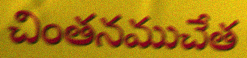
చింతనముచేత